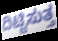
ದಿಟ್ಟಿಸುತ್ತ